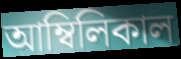
আম্বিলিকাল